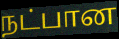
நட்பான